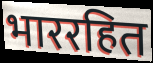
भाररहित